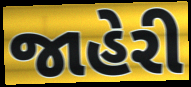
જાહેરી